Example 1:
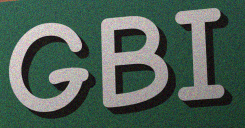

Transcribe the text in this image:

GBI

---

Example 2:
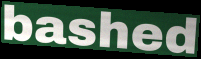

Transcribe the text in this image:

bashed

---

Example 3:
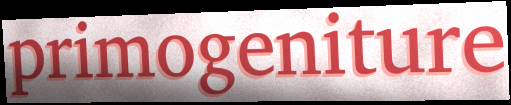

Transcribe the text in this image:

primogeniture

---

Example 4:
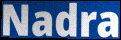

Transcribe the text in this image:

Nadra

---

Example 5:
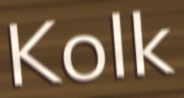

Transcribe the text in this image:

Kolk